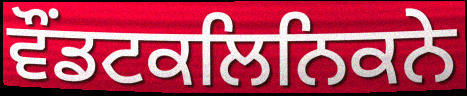
ਵੌਂਡਟਕਲਿਨਿਕਨੇ